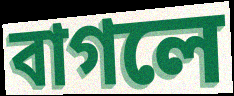
বাগলে